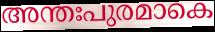
അന്തഃപുരമാകെ